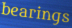
bearings